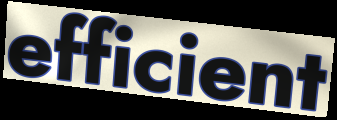
efficient